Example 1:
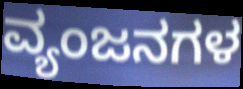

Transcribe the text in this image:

ವ್ಯಂಜನಗಳ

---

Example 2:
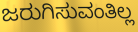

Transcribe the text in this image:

ಜರುಗಿಸುವಂತಿಲ್ಲ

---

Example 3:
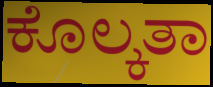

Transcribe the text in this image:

ಕೊಲ್ಕತಾ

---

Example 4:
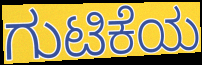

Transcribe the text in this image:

ಗುಟಿಕೆಯ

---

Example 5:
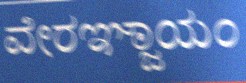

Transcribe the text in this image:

ವೇರಞ್ಜಾಯಂ